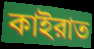
কাইরাত